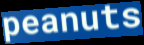
peanuts